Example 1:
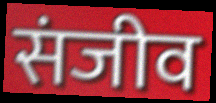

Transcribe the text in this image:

संजीव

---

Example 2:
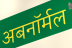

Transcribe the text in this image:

अबनॉर्मल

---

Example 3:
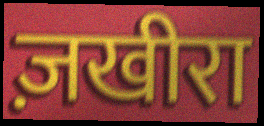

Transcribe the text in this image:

ज़खीरा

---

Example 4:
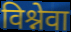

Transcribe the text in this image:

विश्नेवा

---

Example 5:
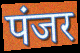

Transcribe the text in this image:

पंजर